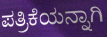
ಪತ್ರಿಕೆಯನ್ನಾಗಿ